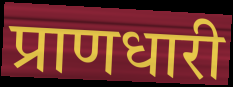
प्राणधारी